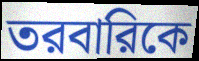
তরবারিকে